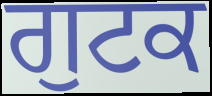
ਗੁਟਕ